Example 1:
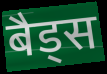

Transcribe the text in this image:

बैड्स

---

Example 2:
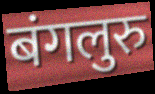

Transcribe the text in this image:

बंगलुरु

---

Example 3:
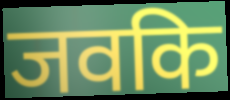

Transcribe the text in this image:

जवकि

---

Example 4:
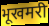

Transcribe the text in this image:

भूखमरी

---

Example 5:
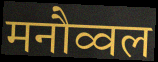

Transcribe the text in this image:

मनौव्वल